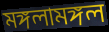
মঙ্গলামঙ্গল